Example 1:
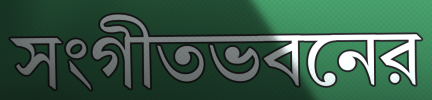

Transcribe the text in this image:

সংগীতভবনের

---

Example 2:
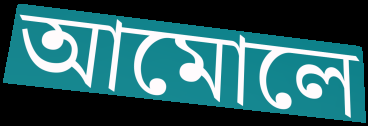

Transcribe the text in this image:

আমোলে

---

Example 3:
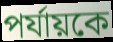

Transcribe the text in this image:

পর্যায়কে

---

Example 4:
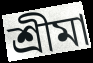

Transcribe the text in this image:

শ্রীমা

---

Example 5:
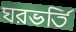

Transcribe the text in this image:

ঘরভর্তি